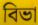
বিভা